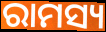
ରାମସ୍ୟ